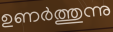
ഉണർത്തുന്നു